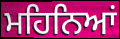
ਮਹਿਨਿਆਂ